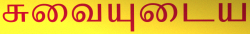
சுவையுடைய